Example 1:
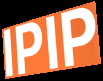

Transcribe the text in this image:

IPIP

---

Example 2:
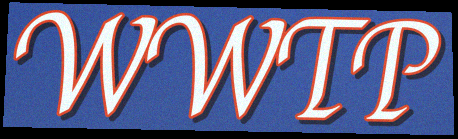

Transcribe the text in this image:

WWTP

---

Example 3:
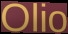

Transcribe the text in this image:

Olio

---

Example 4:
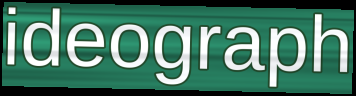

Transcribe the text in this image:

ideograph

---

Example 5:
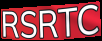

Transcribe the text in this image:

RSRTC